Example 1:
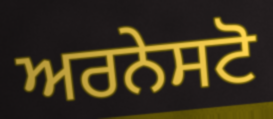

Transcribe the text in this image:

ਅਰਨੇਸਟੋ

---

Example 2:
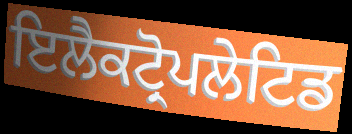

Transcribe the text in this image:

ਇਲੈਕਟ੍ਰੋਪਲੇਟਿਡ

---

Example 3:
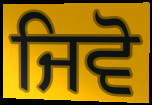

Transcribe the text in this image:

ਜਿਵੋ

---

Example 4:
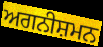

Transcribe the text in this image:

ਅਗਨੀਸ਼ਮਨ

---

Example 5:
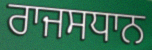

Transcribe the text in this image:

ਰਾਜਸਧਾਨ